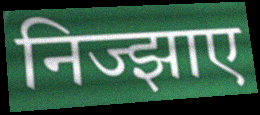
निज्झाए